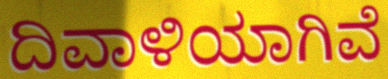
ದಿವಾಳಿಯಾಗಿವೆ